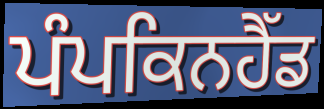
ਪੰਪਕਿਨਹੈੱਡ